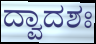
ದ್ವಾದಶಃ